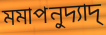
মমাপনুদ্যাদ্